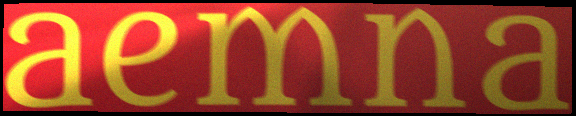
aemna